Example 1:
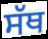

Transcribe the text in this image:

ਸੱਥ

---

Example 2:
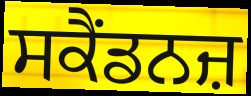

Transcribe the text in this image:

ਸਕੈਂਡਨਜ਼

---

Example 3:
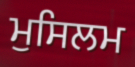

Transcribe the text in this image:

ਮੁਸਿਲਮ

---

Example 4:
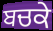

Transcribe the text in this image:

ਬਚਕੇ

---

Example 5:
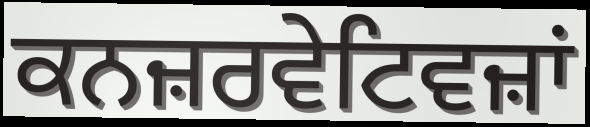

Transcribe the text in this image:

ਕਨਜ਼ਰਵੇਟਿਵਜ਼ਾਂ